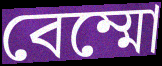
বেম্মো